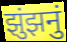
झुंझनुं